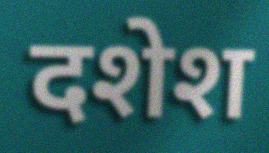
दशेश